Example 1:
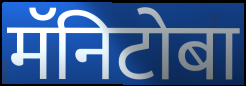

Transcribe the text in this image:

मॅनिटोबा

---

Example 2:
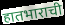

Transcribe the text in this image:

हातभाराची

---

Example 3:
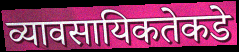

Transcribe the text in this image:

व्यावसायिकतेकडे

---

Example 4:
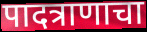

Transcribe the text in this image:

पादत्राणाचा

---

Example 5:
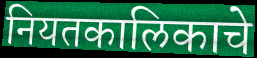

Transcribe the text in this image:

नियतकालिकाचे